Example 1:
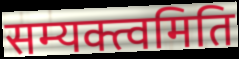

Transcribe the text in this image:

सम्यक्त्वमिति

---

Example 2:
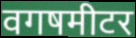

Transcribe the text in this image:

वगषमीटर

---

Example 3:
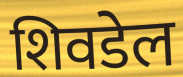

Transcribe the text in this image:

शिवडेल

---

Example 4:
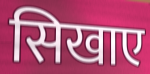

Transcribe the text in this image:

सिखाए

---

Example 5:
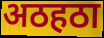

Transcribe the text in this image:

अठहठा